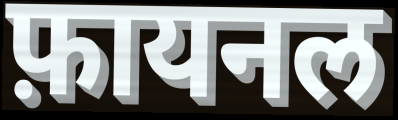
फ़ायनल